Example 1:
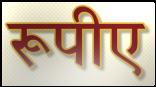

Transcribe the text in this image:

रूपीए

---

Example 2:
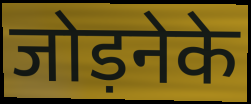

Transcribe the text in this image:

जोड़नेके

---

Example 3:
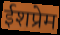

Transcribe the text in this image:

ईशप्रेम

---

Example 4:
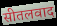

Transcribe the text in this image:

सीतलवाद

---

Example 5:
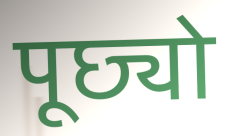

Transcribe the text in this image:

पूछ्यो